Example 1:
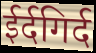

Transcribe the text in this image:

ईर्दगिर्द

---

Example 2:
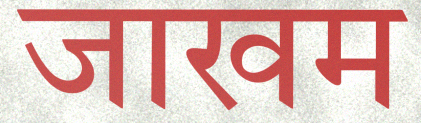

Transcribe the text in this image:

जाखम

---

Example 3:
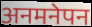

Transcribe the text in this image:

अनमनेपन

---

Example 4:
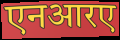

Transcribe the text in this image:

एनआरए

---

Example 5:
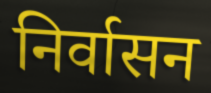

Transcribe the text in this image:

निर्वासन